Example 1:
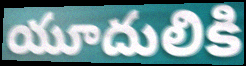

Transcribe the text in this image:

యూదులికి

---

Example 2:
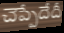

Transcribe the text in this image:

చెప్పేదేదీ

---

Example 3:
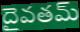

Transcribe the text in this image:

దైవతమ్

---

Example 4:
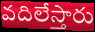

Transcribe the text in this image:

వదిలేస్తారు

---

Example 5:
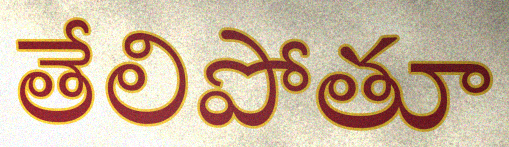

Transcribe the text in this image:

తేలిపోతూ